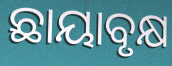
ଛାୟାବୃକ୍ଷ